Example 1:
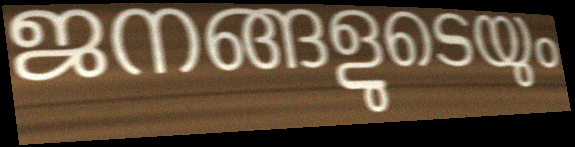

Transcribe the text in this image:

ജനങ്ങളുടെയും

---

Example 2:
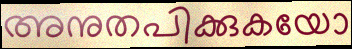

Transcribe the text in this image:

അനുതപിക്കുകയോ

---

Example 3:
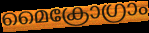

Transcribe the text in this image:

മൈക്രോഗ്രാം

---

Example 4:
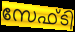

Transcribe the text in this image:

സേഫ്ടി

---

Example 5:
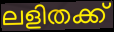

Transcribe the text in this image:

ലളിതക്ക്